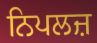
ਨਿਪਲਜ਼